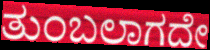
ತುಂಬಲಾಗದೇ